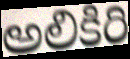
అలికిరి